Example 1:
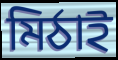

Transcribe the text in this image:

মিঠাই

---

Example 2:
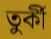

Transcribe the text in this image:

তুৰ্কী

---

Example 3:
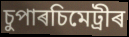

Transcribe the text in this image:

চুপাৰচিমেট্ৰীৰ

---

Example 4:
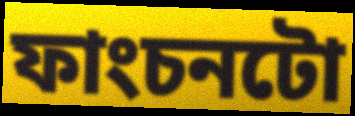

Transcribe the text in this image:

ফাংচনটো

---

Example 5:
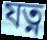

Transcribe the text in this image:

যত্ন